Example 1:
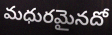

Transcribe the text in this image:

మధురమైనదో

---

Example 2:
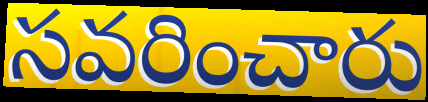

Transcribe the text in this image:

సవరించారు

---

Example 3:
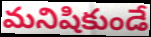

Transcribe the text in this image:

మనిషికుండే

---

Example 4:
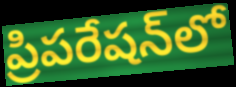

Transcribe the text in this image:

ప్రిపరేషన్‌లో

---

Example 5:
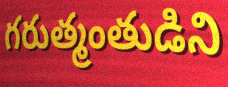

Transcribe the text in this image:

గరుత్మంతుడిని